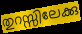
തുറസ്സിലേക്കു